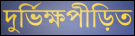
দুর্ভিক্ষপীড়িত